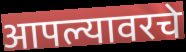
आपल्यावरचे